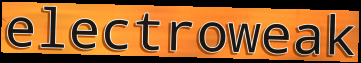
electroweak